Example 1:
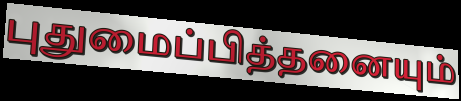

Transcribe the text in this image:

புதுமைப்பித்தனையும்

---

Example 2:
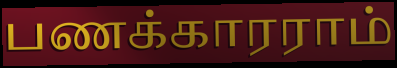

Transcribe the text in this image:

பணக்காரராம்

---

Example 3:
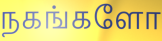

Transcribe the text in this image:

நகங்களோ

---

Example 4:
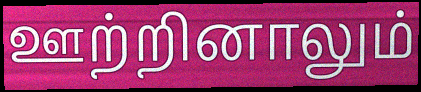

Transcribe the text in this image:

ஊற்றினாலும்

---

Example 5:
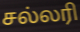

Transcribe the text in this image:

சல்லரி